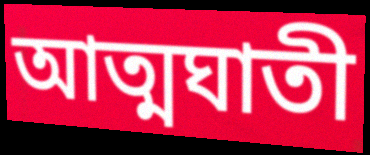
আত্মঘাতী